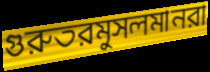
গুরুতরমুসলমানরা